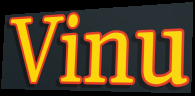
Vinu